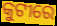
କୁଟୀରେ